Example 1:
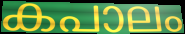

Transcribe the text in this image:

കപാലം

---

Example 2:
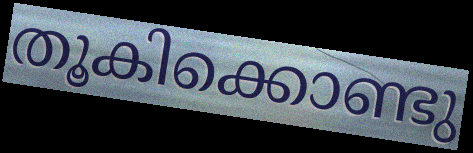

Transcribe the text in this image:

തൂകിക്കൊണ്ടു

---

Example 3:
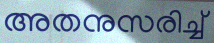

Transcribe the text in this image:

അതനുസരിച്ച്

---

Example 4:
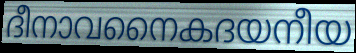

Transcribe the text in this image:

ദീനാവനൈകദയനീയ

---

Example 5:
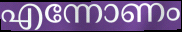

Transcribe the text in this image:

എന്നോണം